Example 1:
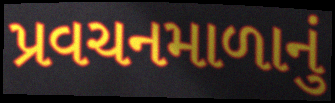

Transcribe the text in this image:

પ્રવચનમાળાનું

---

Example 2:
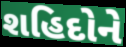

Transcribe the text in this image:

શહિદોને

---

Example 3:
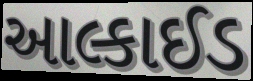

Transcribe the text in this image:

આલ્કાઈડ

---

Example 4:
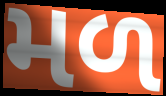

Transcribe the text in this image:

મળ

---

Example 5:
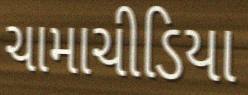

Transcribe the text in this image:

ચામાચીડિયા